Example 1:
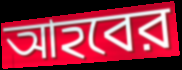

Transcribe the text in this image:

আহবের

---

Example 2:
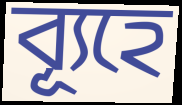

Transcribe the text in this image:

ব্যূহে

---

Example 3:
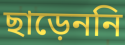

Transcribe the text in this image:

ছাড়েননি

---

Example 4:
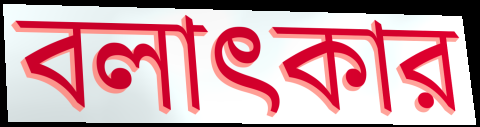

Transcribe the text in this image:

বলাৎকার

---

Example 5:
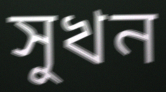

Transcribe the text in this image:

সুখন